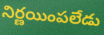
నిర్ణయింపలేడు